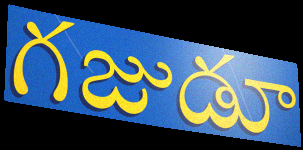
గజుడూ